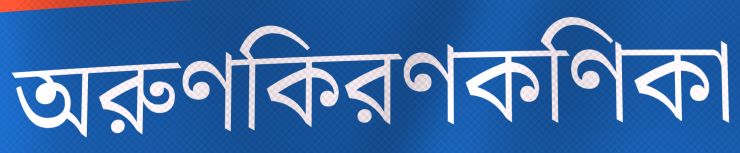
অরুণকিরণকণিকা